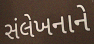
સંલેખનાને